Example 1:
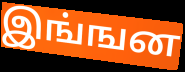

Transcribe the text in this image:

இங்ஙன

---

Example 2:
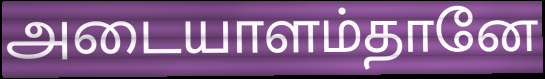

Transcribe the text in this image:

அடையாளம்தானே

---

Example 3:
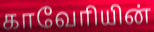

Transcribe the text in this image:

காவேரியின்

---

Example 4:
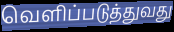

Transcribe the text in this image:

வெளிப்படுத்துவது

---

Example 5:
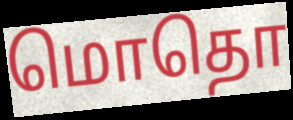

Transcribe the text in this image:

மொதொ